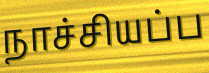
நாச்சியப்ப